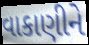
વાકાણીને